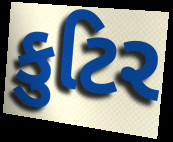
કુટિર